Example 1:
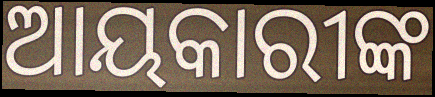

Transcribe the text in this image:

ଆୟକାରୀଙ୍କ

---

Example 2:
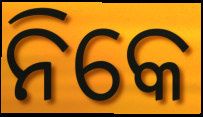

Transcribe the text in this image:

ନିକେ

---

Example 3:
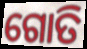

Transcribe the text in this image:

ଗୋତି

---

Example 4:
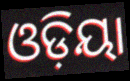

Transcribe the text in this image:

ଓଡ଼ିୟା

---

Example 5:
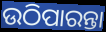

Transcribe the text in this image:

ଉଠିପାରନ୍ତା